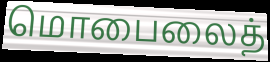
மொபைலைத்